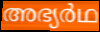
അഭ്യർഥ